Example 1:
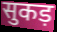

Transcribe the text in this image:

सुकड़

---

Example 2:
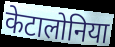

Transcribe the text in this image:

केटालोनिया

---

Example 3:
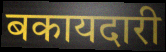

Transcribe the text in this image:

बकायदारी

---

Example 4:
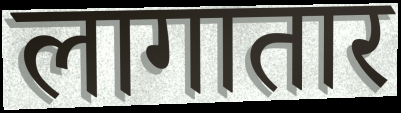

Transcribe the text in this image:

लागातार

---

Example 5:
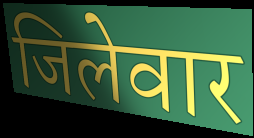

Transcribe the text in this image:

जिलेवार